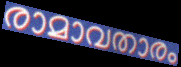
രാമാവതാരം